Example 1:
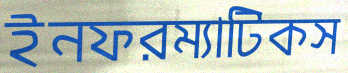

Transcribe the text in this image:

ইনফরম্যাটিকস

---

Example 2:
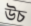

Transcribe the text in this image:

উচ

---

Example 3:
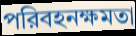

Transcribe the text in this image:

পরিবহনক্ষমতা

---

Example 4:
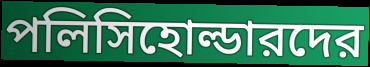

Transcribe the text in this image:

পলিসিহোল্ডারদের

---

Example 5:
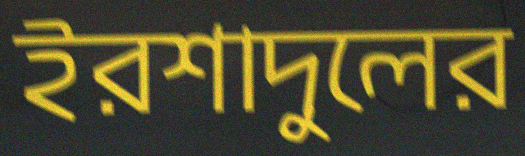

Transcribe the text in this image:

ইরশাদুলের